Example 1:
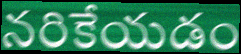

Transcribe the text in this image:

నరికేయడం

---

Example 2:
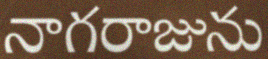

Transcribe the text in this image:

నాగరాజును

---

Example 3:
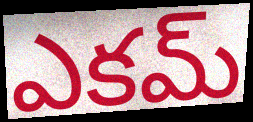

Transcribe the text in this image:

ఎకమ్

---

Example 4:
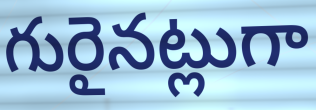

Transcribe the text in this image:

గురైనట్లుగా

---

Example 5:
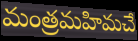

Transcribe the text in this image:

మంత్రమహిమచే